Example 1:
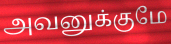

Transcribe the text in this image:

அவனுக்குமே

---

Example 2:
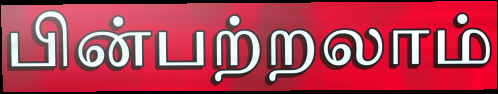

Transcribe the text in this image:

பின்பற்றலாம்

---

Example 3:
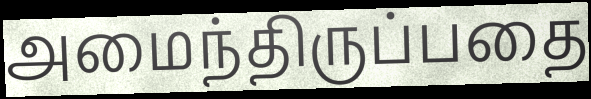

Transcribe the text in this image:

அமைந்திருப்பதை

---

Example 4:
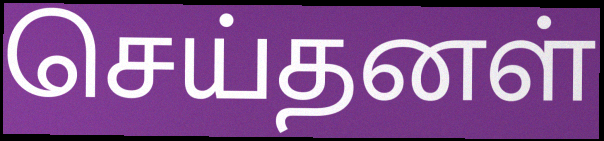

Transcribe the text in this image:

செய்தனள்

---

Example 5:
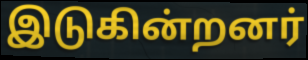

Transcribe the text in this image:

இடுகின்றனர்